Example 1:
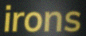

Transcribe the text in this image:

irons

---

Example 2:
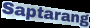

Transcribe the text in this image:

Saptarang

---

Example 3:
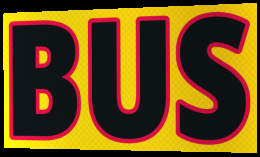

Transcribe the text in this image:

BUS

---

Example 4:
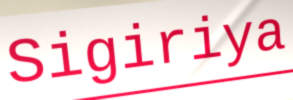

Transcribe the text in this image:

Sigiriya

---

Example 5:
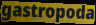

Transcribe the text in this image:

gastropoda